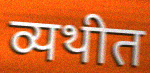
व्यथीत